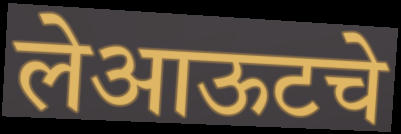
लेआऊटचे